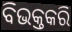
ବିଭକ୍ତକରି